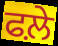
ਫਲ਼ੇ